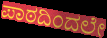
ಪಾಠದಿಂದಲೇ